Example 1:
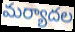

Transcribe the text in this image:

మర్యాదల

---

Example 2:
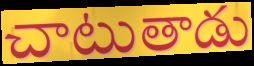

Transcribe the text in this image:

చాటుతాడు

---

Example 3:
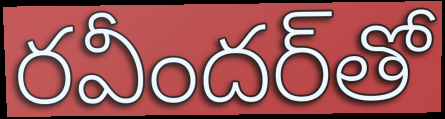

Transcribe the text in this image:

రవీందర్‌తో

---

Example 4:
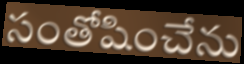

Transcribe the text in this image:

సంతోషించేను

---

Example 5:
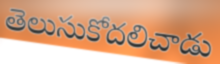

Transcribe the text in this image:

తెలుసుకోదలిచాడు